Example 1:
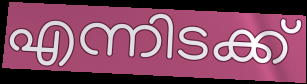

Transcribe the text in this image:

എന്നിടക്ക്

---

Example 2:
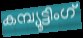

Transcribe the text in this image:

കമ്പ്യൂട്ടിംഗ്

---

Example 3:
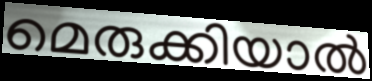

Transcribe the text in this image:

മെരുക്കിയാൽ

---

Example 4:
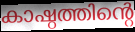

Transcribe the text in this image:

കാഷ്ഠത്തിന്റെ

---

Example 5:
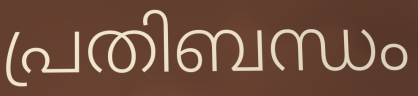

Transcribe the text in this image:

പ്രതിബന്ധം